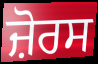
ਜ਼ੋਰਸ